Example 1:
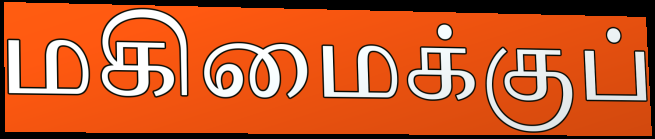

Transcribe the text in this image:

மகிமைக்குப்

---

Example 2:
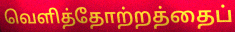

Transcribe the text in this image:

வெளித்தோற்றத்தைப்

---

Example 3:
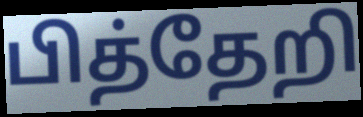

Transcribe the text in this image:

பித்தேறி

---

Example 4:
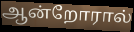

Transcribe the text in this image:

ஆன்றோரால்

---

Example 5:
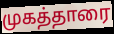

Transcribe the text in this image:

முகத்தாரை